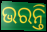
ଭରନ୍ତି